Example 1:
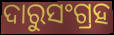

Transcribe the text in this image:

ଦାରୁସଂଗ୍ରହ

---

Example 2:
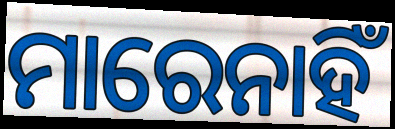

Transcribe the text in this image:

ମାରେନାହିଁ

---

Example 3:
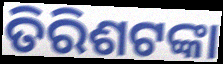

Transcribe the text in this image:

ତିରିଶଟଙ୍କା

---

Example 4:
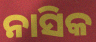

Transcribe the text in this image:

ନାସିକ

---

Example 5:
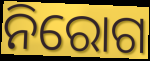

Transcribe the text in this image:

ନିରୋଗ